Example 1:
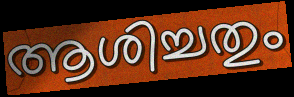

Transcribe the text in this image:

ആശിച്ചതും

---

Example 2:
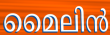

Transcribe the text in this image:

മൈലിൻ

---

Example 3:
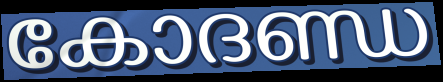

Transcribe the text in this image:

കോദണ്ഡ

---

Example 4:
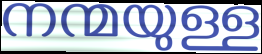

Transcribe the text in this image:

നന്മയുള്ള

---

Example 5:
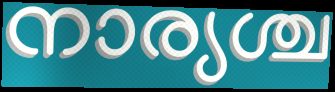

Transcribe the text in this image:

നാര്യശ്ച